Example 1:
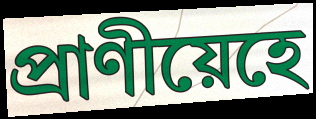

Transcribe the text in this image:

প্ৰাণীয়েহে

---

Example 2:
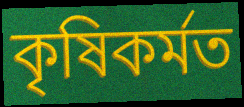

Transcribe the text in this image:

কৃষিকৰ্মত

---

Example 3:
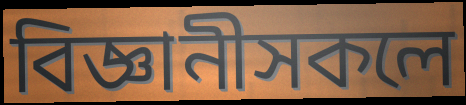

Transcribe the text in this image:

বিজ্ঞানীসকলে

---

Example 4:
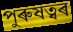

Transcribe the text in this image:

পুৰুষত্বৰ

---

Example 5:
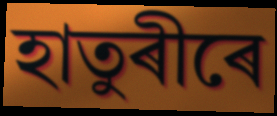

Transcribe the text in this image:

হাতুৰীৰে